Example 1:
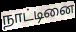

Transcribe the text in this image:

நாட்டினை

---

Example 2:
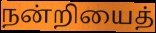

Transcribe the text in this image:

நன்றியைத்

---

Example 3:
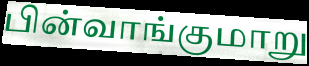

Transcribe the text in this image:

பின்வாங்குமாறு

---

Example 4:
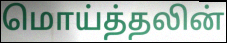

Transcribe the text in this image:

மொய்த்தலின்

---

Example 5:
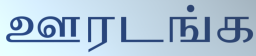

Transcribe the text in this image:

ஊரடங்க